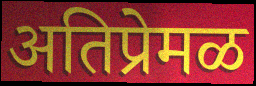
अतिप्रेमळ